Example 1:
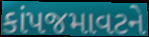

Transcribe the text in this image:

કાંપજમાવટને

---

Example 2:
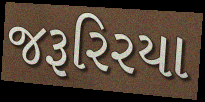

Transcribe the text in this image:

જરૂરિરયા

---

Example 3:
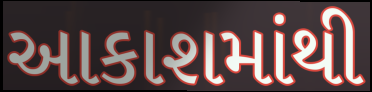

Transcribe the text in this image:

આકાશમાંથી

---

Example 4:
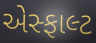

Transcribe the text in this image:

એસ્ફાલ્ટ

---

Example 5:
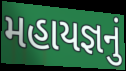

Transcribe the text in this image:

મહાયજ્ઞનું